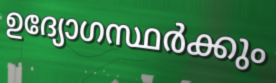
ഉദ്യോഗസ്ഥർക്കും